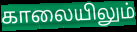
காலையிலும்